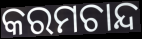
କରମଚାନ୍ଦ